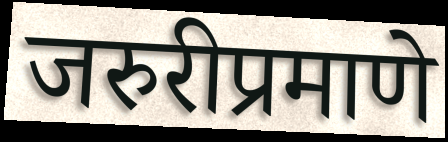
जरुरीप्रमाणे